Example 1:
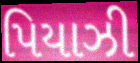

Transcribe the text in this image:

પિયાઝી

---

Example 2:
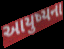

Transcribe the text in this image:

આયુષ્યના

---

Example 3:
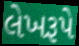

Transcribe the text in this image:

લેખરૂપે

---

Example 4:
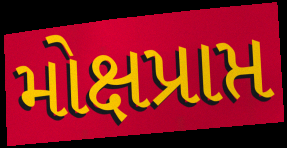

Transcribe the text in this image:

મોક્ષપ્રાપ્ત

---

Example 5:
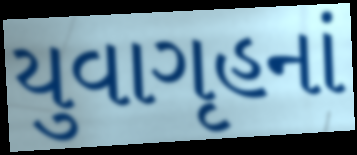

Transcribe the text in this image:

યુવાગૃહનાં